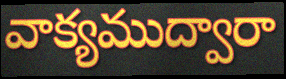
వాక్యముద్వారా